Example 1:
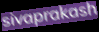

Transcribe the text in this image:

sivaprakash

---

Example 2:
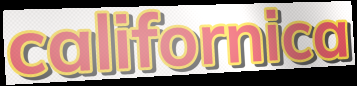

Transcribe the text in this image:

californica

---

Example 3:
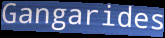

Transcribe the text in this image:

Gangarides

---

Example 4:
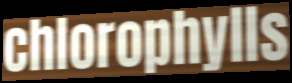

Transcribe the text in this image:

chlorophylls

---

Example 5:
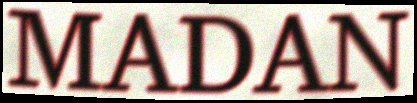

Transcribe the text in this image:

MADAN